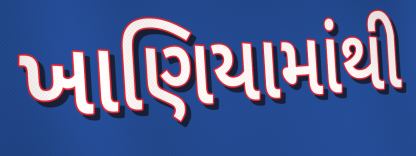
ખાણિયામાંથી